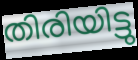
തിരിയിട്ടു